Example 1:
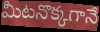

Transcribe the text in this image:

మీటనొక్కగానే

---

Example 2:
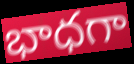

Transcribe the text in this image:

భాధగా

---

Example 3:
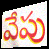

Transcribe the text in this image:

వేపు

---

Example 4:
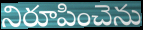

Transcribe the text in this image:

నిరూపించెను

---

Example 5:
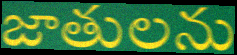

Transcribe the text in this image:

జాతులను